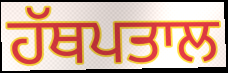
ਹੱਥਪਤਾਲ